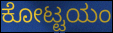
ಕೋಟ್ಟಯಂ